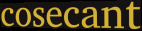
cosecant